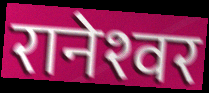
रानेश्वर